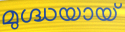
മുഗ്ദ്ധയായ്